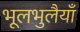
भूलभुलैयाँ